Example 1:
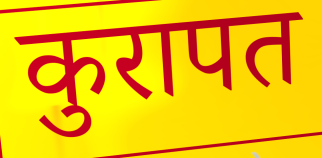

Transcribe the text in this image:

कुरापत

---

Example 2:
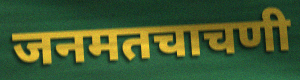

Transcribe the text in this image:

जनमतचाचणी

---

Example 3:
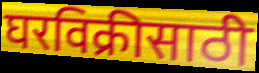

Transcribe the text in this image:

घरविक्रीसाठी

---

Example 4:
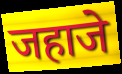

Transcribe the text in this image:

जहाजे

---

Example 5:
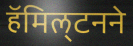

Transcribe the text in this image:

हॅमिल्टनने